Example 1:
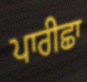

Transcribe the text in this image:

ਪਾਰੀਛਾ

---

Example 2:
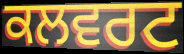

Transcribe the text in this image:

ਕਲਵਰਟ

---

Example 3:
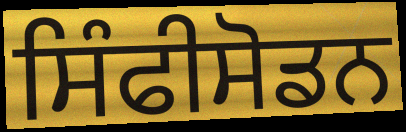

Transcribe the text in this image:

ਸਿੰਫੀਸੋਡਨ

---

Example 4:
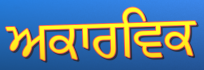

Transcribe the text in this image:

ਅਕਾਰਵਿਕ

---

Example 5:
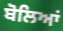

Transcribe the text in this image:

ਬੋਲਿਆਂ